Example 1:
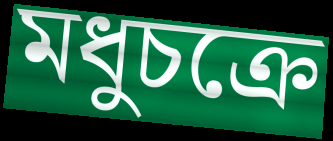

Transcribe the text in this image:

মধুচক্রে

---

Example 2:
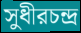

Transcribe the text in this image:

সুধীরচন্দ্র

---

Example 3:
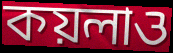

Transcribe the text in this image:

কয়লাও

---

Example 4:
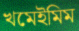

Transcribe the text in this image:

খমেইমিম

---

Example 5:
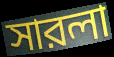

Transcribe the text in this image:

সারলা